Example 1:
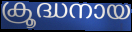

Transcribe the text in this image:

ക്രൂദ്ധനായ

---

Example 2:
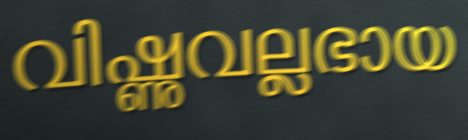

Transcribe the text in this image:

വിഷ്ണുവല്ലഭായ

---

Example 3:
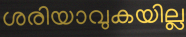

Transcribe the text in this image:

ശരിയാവുകയില്ല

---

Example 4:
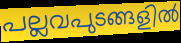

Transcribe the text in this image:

പല്ലവപുടങ്ങളിൽ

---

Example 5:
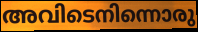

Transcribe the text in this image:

അവിടെനിന്നൊരു